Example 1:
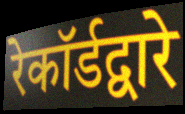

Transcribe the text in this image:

रेकॉर्डद्वारे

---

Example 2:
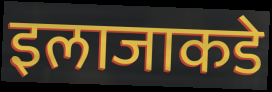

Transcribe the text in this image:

इलाजाकडे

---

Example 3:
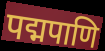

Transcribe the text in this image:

पद्मपाणि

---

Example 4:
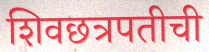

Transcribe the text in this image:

शिवछत्रपतीची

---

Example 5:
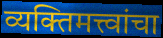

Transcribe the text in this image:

व्यक्तिमत्त्वांचा